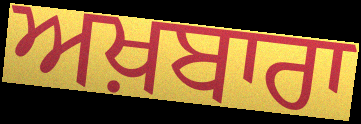
ਅਖ਼ਬਾਰਾ